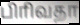
பிரிவதா